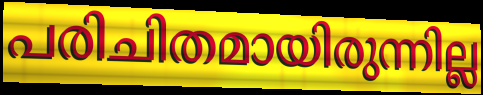
പരിചിതമായിരുന്നില്ല